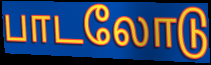
பாடலோடு